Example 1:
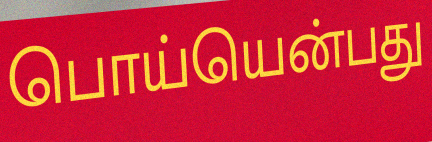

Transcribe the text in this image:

பொய்யென்பது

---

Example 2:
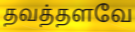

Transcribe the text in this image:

தவத்தளவே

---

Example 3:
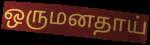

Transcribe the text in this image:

ஒருமனதாய்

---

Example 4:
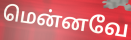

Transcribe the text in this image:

மென்னவே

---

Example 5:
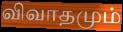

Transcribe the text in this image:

விவாதமும்